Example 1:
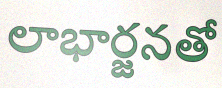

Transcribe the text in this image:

లాభార్జనతో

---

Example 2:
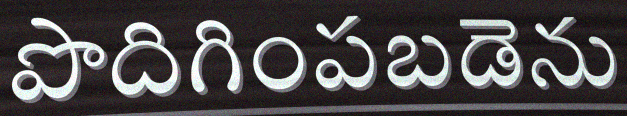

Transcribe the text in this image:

పొదిగింపబడెను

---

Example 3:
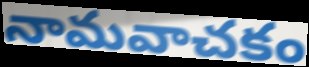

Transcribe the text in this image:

నామవాచకం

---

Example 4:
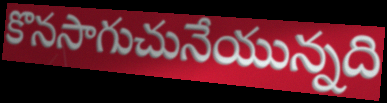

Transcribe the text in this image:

కొనసాగుచునేయున్నది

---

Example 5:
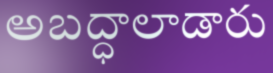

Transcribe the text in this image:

అబద్ధాలాడారు